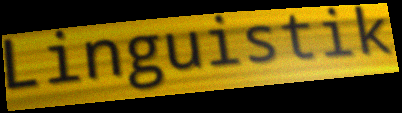
Linguistik